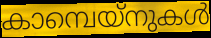
കാമ്പെയ്നുകൾ